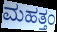
ಮಹತ್ತಂ